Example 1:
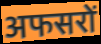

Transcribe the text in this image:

अफसरों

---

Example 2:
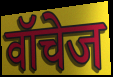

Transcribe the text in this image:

वॉचेज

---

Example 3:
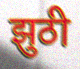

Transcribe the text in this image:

झुठी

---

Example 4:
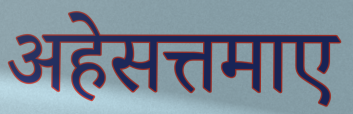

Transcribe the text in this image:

अहेसत्तमाए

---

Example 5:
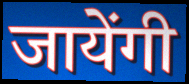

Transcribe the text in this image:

जायेंगी